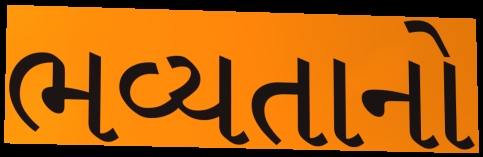
ભવ્યતાનો